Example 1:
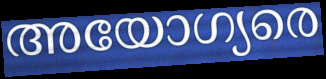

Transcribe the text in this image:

അയോഗ്യരെ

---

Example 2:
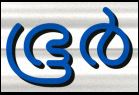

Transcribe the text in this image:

ഭൂർ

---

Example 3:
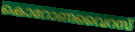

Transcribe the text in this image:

കൊറോണവൈറസ്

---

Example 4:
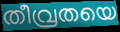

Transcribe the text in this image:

തീവ്രതയെ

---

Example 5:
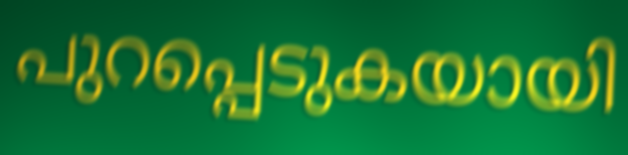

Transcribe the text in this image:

പുറപ്പെടുകയായി